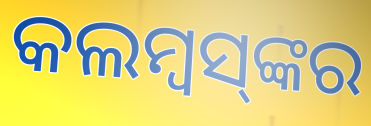
କଲମ୍ୱସ୍‌ଙ୍କର